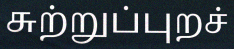
சுற்றுப்புறச்